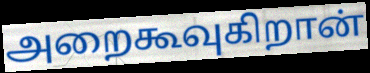
அறைகூவுகிறான்